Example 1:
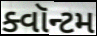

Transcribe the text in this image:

ક્વૉન્ટમ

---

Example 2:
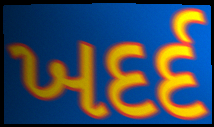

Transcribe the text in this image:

ખદર્દ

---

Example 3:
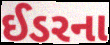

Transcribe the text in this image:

ઈડરના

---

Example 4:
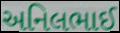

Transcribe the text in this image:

અનિલભાઈ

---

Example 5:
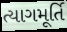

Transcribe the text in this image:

ત્યાગમૂર્તિ